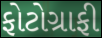
ફોટોગ્રાફી